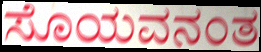
ಸೊಯವನಂತ